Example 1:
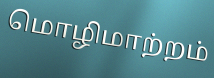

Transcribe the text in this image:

மொழிமாற்றம்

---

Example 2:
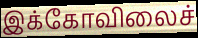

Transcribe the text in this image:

இக்கோவிலைச்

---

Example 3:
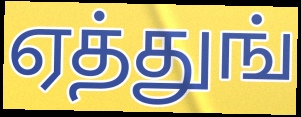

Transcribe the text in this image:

ஏத்துங்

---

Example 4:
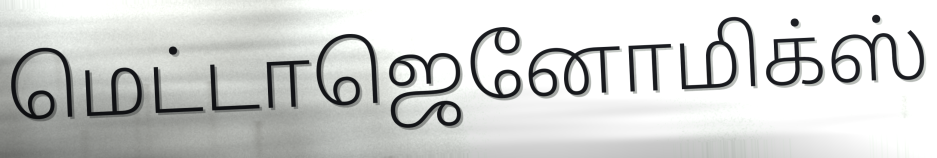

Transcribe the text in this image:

மெட்டாஜெனோமிக்ஸ்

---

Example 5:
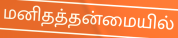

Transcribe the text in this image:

மனிதத்தன்மையில்